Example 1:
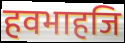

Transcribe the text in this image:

हवभाहजि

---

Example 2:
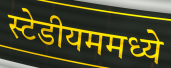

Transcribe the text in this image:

स्टेडीयममध्ये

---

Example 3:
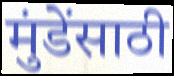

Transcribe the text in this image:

मुंडेंसाठी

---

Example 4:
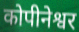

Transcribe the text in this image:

कोपीनेश्वर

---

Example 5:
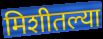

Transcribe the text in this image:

मिशीतल्या